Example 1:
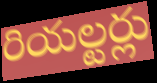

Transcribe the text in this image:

రియల్టర్లు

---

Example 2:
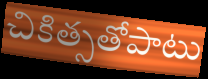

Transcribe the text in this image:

చికిత్సతోపాటు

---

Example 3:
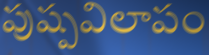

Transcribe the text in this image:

పుష్పవిలాపం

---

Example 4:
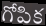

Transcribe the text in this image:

గోపిక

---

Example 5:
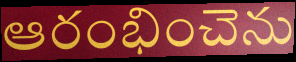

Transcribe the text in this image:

ఆరంభించెను